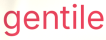
gentile